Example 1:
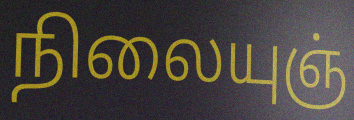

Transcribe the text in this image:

நிலையுஞ்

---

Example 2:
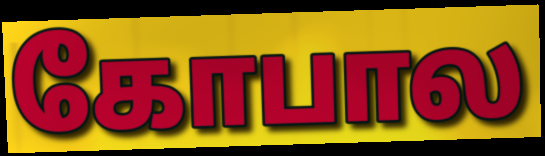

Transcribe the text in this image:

கோபால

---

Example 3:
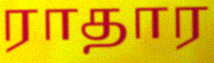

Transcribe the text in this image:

ராதார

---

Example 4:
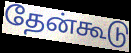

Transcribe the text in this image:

தேன்கூடு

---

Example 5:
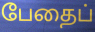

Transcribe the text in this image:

பேதைப்